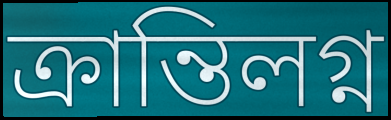
ক্রান্তিলগ্ন